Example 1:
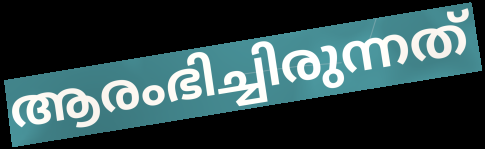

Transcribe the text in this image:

ആരംഭിച്ചിരുന്നത്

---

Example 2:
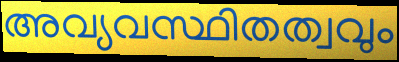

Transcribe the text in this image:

അവ്യവസ്ഥിതത്വവും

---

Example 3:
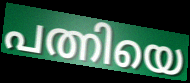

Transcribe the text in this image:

പത്നിയെ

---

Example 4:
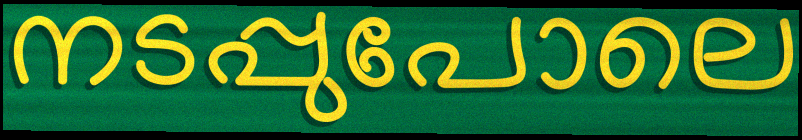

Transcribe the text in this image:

നടപ്പുപോലെ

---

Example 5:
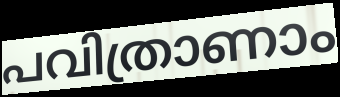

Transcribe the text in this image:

പവിത്രാണാം